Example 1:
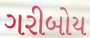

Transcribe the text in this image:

ગરીબોય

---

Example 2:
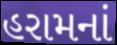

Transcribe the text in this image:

હરામનાં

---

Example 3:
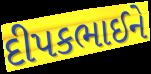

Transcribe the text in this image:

દીપકભાઈને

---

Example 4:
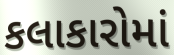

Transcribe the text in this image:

કલાકારોમાં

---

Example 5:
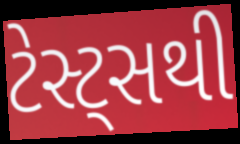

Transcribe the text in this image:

ટેસ્ટ્સથી